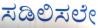
ಸಡಿಲಿಸಲೇ